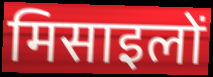
मिसाइलों